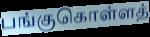
பங்குகொள்ளத்